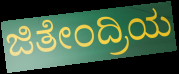
ಜಿತೇಂದ್ರಿಯ